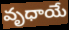
వృధాయే